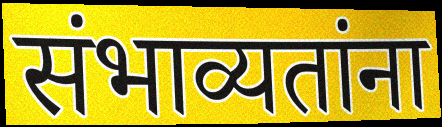
संभाव्यतांना